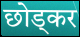
छोड्कर